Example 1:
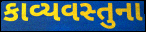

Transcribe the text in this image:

કાવ્યવસ્તુના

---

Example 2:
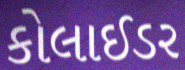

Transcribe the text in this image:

કોલાઈડર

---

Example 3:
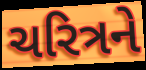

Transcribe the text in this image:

ચરિત્રને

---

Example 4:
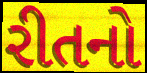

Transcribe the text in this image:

રીતનો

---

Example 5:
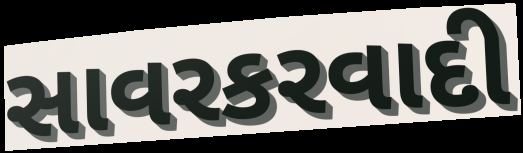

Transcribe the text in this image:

સાવરકરવાદી